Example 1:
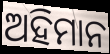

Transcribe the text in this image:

ଅହିମାନ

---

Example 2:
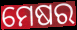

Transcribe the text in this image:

ମେଷର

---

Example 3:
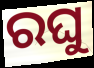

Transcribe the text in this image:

ରଘୁ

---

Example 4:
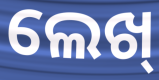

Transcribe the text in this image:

ଲେଖ୍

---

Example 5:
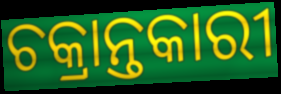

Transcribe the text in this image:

ଚକ୍ରାନ୍ତକାରୀ